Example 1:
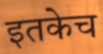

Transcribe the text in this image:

इतकेच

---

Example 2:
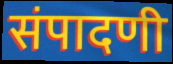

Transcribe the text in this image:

संपादणी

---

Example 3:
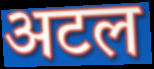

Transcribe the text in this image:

अटल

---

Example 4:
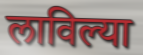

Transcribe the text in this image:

लाविल्या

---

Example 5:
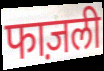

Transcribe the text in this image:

फाज़ली